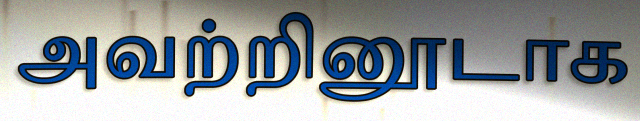
அவற்றினூடாக